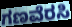
ಗಣವೆರಸಿ